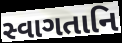
સ્વાગતાનિ